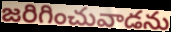
జరిగించువాడను